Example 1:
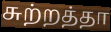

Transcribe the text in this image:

சுற்றத்தா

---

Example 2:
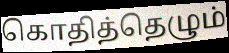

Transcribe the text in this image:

கொதித்தெழும்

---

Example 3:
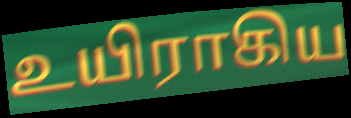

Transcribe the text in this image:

உயிராகிய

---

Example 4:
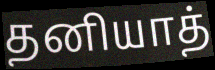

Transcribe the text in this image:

தனியாத்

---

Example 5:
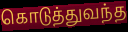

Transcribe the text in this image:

கொடுத்துவந்த